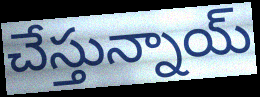
చేస్తున్నాయ్